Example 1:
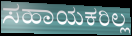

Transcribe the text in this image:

ಸಹಾಯಕರಿಲ್ಲ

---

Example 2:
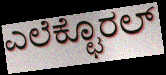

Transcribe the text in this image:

ಎಲೆಕ್ಟೊರಲ್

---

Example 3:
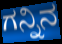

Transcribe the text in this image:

ಗನ್ನಿನ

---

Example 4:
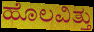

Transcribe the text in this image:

ಹೊಲವಿತ್ತು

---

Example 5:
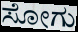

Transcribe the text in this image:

ಸೋಗು